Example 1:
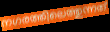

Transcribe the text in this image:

നഗരത്തിലെത്തുന്നത്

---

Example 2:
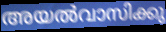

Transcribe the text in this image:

അയൽവാസിക്കു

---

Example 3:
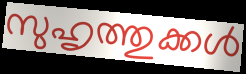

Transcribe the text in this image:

സുഹൃത്തുക്കൾ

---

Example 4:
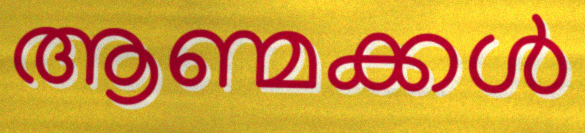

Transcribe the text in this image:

ആണ്മക്കൾ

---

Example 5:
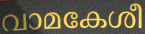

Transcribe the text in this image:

വാമകേശീ